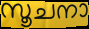
സൂചനാ